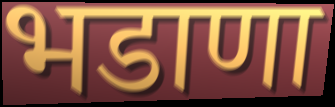
भडाणा